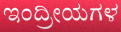
ಇಂದ್ರೀಯಗಳ